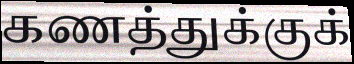
கணத்துக்குக்